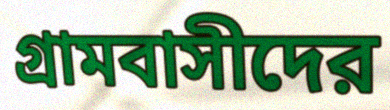
গ্রামবাসীদের